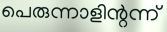
പെരുന്നാളിന്റന്ന്